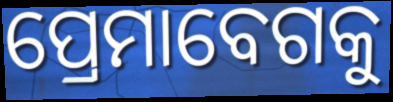
ପ୍ରେମାବେଗକୁ